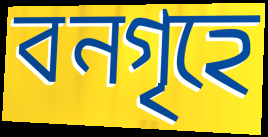
বনগৃহে